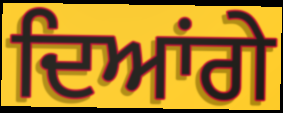
ਦਿਆਂਗੇ